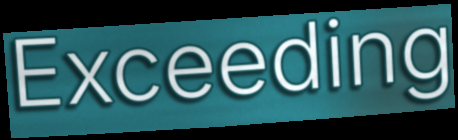
Exceeding